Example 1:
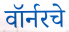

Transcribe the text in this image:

वॉर्नरचे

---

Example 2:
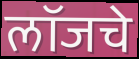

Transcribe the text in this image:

लॉजचे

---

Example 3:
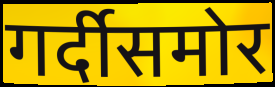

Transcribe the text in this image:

गर्दीसमोर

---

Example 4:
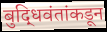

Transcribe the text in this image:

बुद्धिवंतांकडून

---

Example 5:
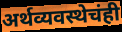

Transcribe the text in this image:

अर्थव्यवस्थेचंही